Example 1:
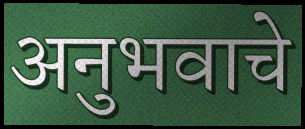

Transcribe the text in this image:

अनुभवाचे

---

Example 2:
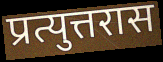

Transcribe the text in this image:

प्रत्युत्तरास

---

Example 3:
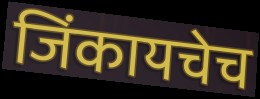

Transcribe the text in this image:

जिंकायचेच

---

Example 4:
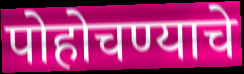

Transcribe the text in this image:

पोहोचण्याचे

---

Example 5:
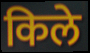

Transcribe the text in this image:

किले